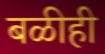
बळीही